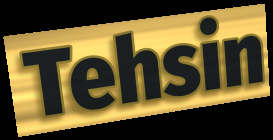
Tehsin